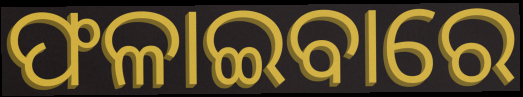
ଫଳାଇବାରେ